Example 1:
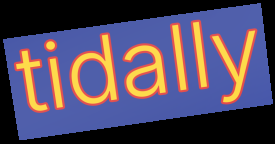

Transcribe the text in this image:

tidally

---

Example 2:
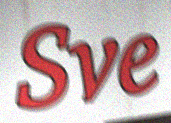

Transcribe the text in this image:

Sve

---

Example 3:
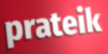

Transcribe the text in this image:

prateik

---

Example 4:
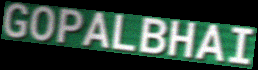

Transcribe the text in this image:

GOPALBHAI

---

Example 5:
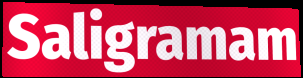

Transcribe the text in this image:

Saligramam